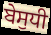
ਬੇਸੁਧੀ